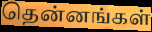
தென்னங்கள்